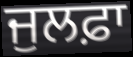
ਜੁਲਫ਼ਾ